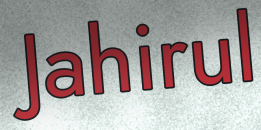
Jahirul